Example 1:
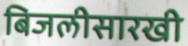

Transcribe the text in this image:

बिजलीसारखी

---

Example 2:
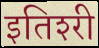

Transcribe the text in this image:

इतिश्री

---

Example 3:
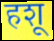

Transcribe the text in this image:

हशू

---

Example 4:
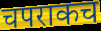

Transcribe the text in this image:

चपराकच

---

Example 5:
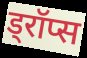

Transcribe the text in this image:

ड्रॉप्स